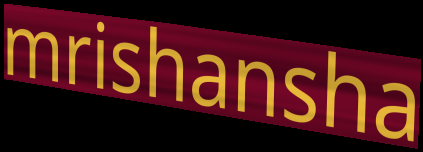
mrishansha